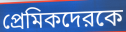
প্রেমিকদেরকে